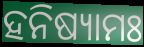
ହନିଷ୍ୟାମଃ